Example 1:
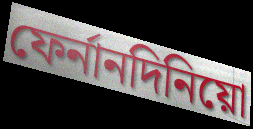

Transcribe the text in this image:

ফের্নানদিনিয়ো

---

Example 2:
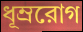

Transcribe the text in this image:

ধূম্ররোগ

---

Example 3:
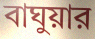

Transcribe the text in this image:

বাঘুয়ার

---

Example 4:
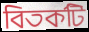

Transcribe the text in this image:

বিতর্কটি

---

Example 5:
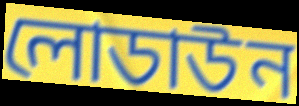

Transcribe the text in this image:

লোডাউন